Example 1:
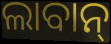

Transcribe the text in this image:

ଲାବାନ୍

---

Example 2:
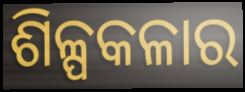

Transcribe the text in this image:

ଶିଳ୍ପକଳାର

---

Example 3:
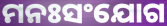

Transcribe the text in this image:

ମନଃସଂଯୋଗ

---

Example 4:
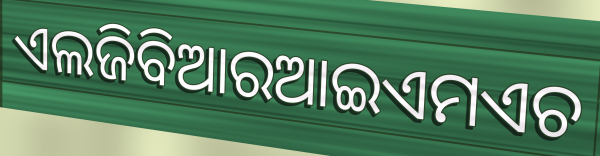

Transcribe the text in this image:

ଏଲଜିବିଆରଆଇଏମଏଚ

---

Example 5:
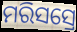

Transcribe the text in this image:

ମରିସସ୍ରେ